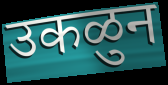
उकळुन